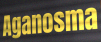
Aganosma